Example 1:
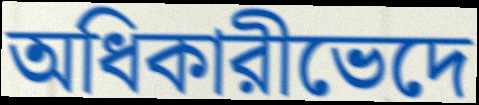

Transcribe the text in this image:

অধিকারীভেদে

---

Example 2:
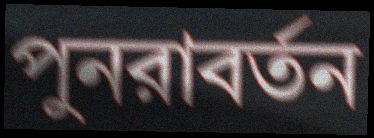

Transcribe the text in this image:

পুনরাবর্তন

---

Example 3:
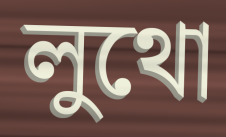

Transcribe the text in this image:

লুথো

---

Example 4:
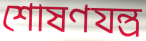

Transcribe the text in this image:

শোষণযন্ত্র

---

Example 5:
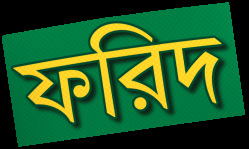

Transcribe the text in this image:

ফরিদ